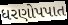
ધરણોપપાત